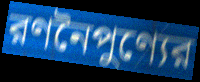
রণনৈপুণ্যের